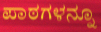
ಪಾಠಗಳನ್ನೂ